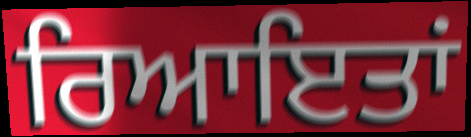
ਰਿਆਇਤਾਂ